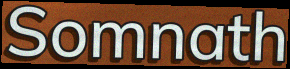
Somnath